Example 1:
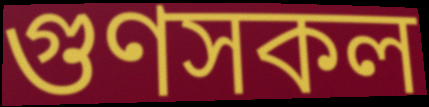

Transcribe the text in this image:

গুণসকল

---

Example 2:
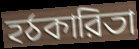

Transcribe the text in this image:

হঠকারিতা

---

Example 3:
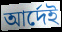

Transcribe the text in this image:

আর্দেই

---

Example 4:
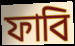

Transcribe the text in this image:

ফাবি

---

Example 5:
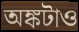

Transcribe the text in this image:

অঙ্কটাও